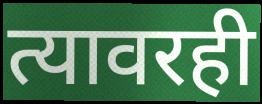
त्यावरही